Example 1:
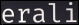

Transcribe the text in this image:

erali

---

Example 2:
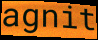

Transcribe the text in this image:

agnit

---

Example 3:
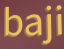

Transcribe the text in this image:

baji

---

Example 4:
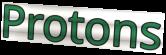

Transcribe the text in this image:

Protons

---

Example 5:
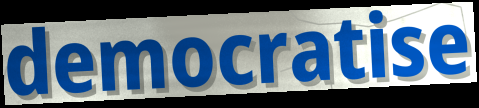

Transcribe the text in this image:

democratise